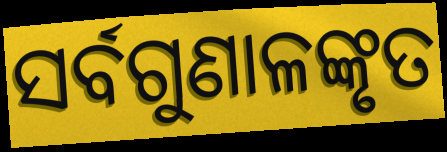
ସର୍ବଗୁଣାଳଙ୍କୃତ